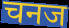
चनज